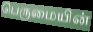
பெருமையின்